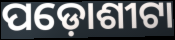
ପଡ଼ୋଶୀଟା